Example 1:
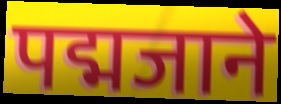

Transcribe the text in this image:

पद्मजाने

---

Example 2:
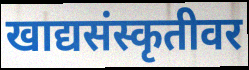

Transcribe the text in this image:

खाद्यसंस्कृतीवर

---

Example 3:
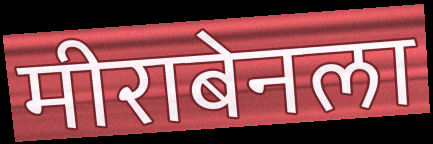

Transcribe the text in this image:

मीराबेनला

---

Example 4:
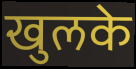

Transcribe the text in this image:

खुलके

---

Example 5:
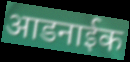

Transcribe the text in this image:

आडनाईक